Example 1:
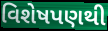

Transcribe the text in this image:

વિશેષપણથી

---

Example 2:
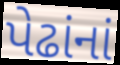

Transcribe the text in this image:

પેઢાંનાં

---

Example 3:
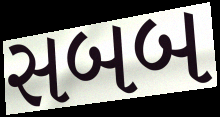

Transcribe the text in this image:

સબબ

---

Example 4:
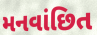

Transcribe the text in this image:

મનવાંછિત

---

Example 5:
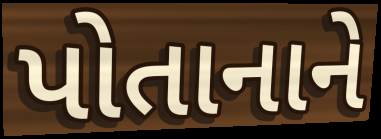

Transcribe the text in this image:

પોતાનાને